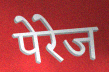
पेरेज